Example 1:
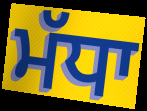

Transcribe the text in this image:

ਮੱਧਾ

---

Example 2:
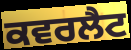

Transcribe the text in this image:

ਕਵਰਲੈਟ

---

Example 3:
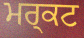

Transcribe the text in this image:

ਮਰ੍ਕਟ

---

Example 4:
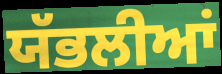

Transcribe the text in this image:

ਯੱਭਲੀਆਂ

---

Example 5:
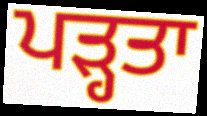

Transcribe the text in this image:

ਪੜ੍ਹਤਾ